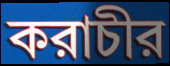
করাচীর